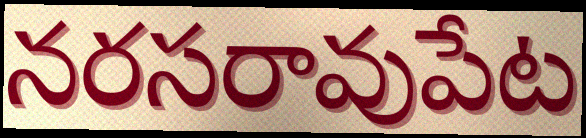
నరసరావుపేట